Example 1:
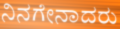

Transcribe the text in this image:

ನಿನಗೇನಾದರು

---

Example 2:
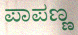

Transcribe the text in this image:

ಪಾಪಣ್ಣ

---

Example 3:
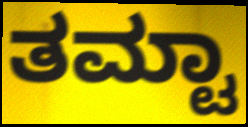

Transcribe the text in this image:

ತಮ್ಟಾ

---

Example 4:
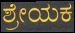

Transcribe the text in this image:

ಶ್ರೇಯಕ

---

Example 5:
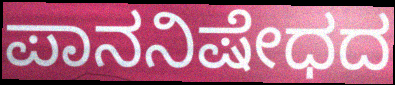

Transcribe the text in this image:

ಪಾನನಿಷೇಧದ